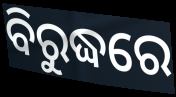
ବିରୁଦ୍ଧରେ